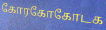
கோரகோகோடக